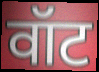
वॉट